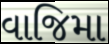
વાજિમા